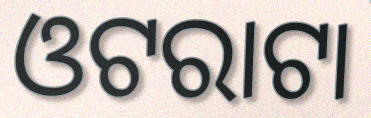
ଓଟରାଟା